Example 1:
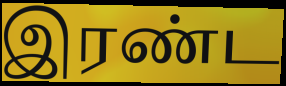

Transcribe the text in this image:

இரண்ட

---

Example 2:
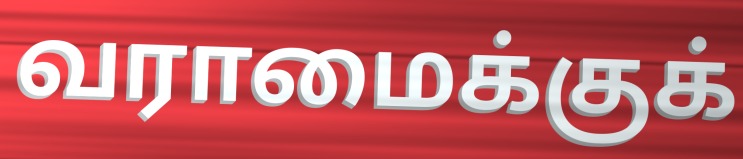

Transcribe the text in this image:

வராமைக்குக்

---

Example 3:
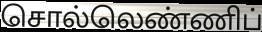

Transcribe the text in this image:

சொல்லெண்ணிப்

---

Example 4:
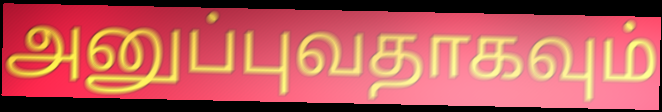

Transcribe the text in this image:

அனுப்புவதாகவும்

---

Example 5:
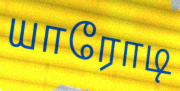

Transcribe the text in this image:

யாரோடி